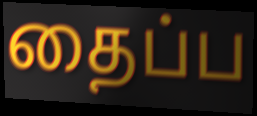
தைப்ப